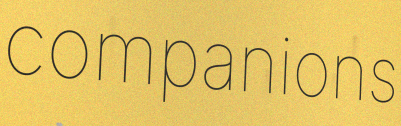
companions